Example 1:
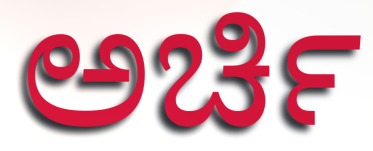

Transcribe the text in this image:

ಅರ್ಚಿ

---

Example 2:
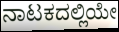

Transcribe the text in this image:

ನಾಟಕದಲ್ಲಿಯೇ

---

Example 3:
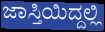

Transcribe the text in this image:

ಜಾಸ್ತಿಯಿದ್ದಲ್ಲಿ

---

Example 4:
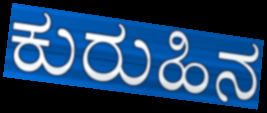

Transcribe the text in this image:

ಕುರುಹಿನ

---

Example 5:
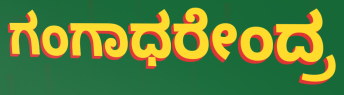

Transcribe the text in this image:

ಗಂಗಾಧರೇಂದ್ರ